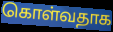
கொள்வதாக